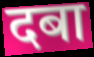
दबा